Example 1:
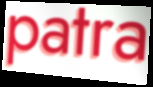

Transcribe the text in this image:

patra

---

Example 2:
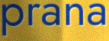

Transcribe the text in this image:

prana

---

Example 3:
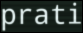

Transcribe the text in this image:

prati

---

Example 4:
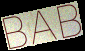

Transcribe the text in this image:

BAB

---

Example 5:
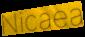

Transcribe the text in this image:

Nicaea